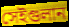
সেইগুলান